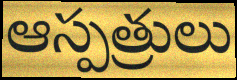
ఆస్పత్రులు